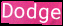
Dodge